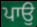
ਪਾਉ